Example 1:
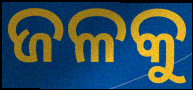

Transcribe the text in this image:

ଜଳକୁ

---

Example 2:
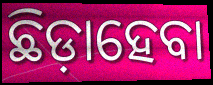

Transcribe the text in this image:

ଛିଡ଼ାହେବା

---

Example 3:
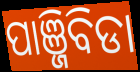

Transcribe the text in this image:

ପାଞ୍ଜିବିଡା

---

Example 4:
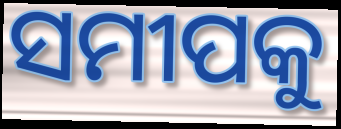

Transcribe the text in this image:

ସମୀପକୁ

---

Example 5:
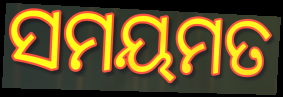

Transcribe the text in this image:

ସମୟମତ